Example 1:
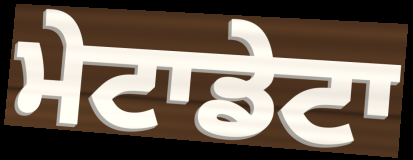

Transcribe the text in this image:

ਮੇਟਾਡੇਟਾ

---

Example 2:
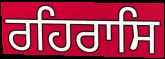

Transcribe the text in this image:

ਰਹਿਰਾਸਿ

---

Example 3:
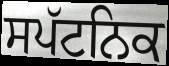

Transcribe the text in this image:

ਸਪੱਟਨਿਕ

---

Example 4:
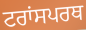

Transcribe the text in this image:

ਟਰਾਂਸਪਰਥ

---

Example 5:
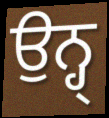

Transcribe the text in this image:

ਉਨ੍ਹ੍